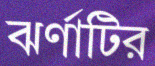
ঝর্ণাটির